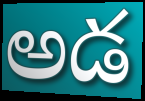
అడ